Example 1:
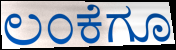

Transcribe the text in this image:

ಲಂಕೆಗೂ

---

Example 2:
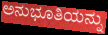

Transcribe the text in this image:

ಅನುಭೂತಿಯನ್ನು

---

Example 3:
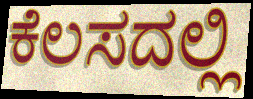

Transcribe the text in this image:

ಕೆಲಸದಲ್ಲಿ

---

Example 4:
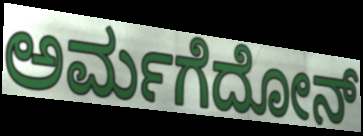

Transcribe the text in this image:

ಅರ್ಮಗೆದೋನ್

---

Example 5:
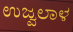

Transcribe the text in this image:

ಉಜ್ವಲಾಳ